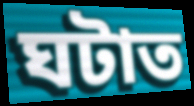
ঘটাত